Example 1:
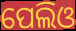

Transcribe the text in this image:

ପେଲିଓ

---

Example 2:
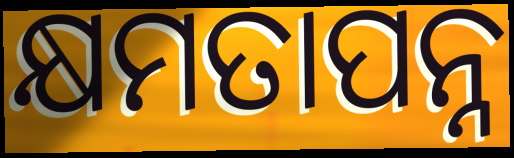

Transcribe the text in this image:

କ୍ଷମତାପନ୍ନ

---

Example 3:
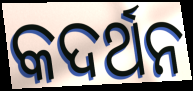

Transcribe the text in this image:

କଦର୍ଥନ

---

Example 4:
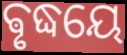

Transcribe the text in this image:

ଵୃଦ୍ଧୟେ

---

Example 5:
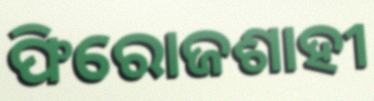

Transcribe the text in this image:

ଫିରୋଜଶାହୀ